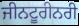
ਜੀਨਟੂਰੀਨਰੀ